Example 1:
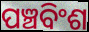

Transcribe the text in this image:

ପଞ୍ଚବିଂଶ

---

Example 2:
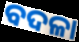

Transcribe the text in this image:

ବଦଳା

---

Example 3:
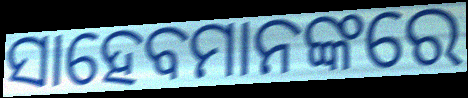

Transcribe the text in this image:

ସାହେବମାନଙ୍କରେ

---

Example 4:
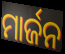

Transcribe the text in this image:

ମାର୍ଜନ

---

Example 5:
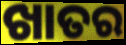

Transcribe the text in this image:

ଖାତର